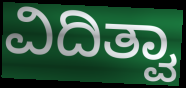
ವಿದಿತ್ವಾ